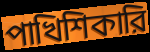
পাখিশিকারি